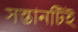
সন্তানটিই